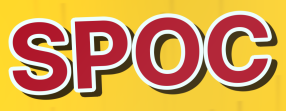
SPOC